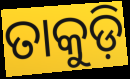
ତାକୁଡ଼ି